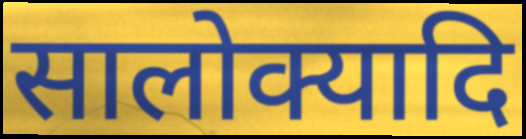
सालोक्यादि